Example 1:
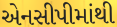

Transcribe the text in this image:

એનસીપીમાંથી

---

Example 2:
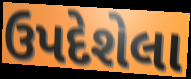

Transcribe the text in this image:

ઉપદેશેલા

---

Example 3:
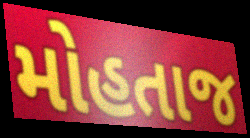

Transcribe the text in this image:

મોહતાજ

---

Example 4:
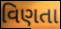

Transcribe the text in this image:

વિણતા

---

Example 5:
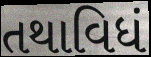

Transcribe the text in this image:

તથાવિધં